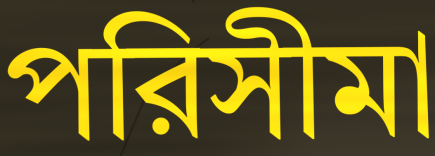
পরিসীমা